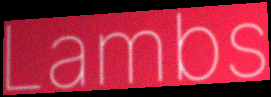
Lambs